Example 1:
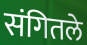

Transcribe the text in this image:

संगितले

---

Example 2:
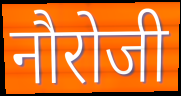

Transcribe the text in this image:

नौरोजी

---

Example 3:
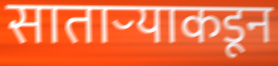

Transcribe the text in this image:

साताऱ्याकडून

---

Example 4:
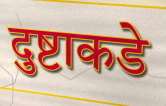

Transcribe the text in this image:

दुष्टाकडे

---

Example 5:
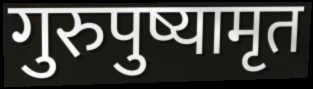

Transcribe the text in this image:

गुरुपुष्यामृत